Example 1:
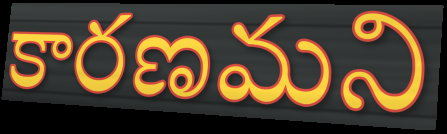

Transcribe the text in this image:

కారణమని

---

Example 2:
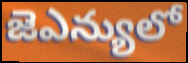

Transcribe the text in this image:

జెఎన్యులో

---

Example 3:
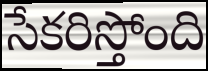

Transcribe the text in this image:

సేకరిస్తోంది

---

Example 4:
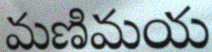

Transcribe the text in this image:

మణిమయ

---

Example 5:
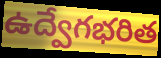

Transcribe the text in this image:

ఉద్వేగభరిత